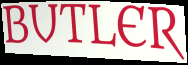
BUTLER